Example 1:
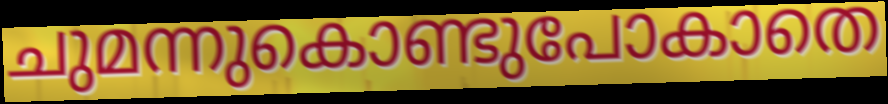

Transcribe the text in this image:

ചുമന്നുകൊണ്ടുപോകാതെ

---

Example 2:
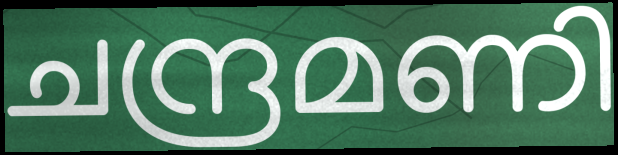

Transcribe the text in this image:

ചന്ദ്രമണി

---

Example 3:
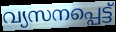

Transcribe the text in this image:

വ്യസനപ്പെട്ട്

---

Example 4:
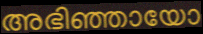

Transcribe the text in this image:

അഭിഞ്ഞായോ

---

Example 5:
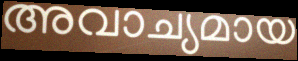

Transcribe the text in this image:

അവാച്യമായ